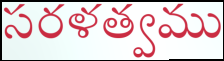
సరళత్వము